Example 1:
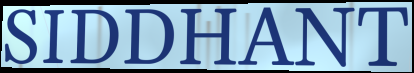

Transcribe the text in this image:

SIDDHANT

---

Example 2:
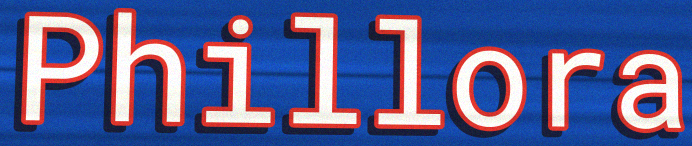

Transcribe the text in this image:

Phillora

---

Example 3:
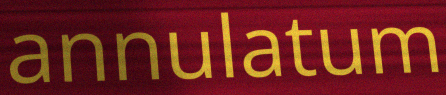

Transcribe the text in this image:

annulatum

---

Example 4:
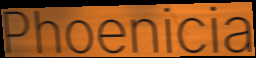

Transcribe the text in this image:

Phoenicia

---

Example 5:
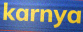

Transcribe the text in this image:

karnya